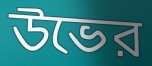
উভের